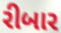
રીબાર